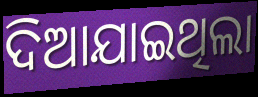
ଦିଆଯାଇଥିଲା